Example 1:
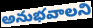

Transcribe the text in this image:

అనుభవాలని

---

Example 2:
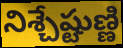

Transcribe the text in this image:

నిశ్చేష్టుణ్ణి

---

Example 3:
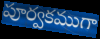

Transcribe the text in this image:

పూర్వకముగా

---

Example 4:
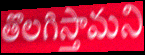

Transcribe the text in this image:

తొలగిస్తామని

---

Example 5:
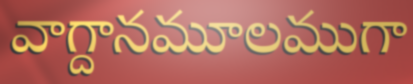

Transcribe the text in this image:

వాగ్దానమూలముగా